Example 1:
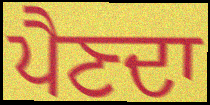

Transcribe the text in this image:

ਪੈਣਦਾ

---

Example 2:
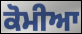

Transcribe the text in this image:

ਕੋਮੀਆ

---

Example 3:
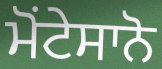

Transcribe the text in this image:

ਮੋਂਟੇਸਾਨੋ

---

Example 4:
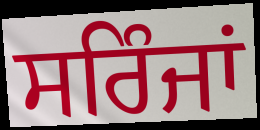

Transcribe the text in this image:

ਸਰਿੰਜਾਂ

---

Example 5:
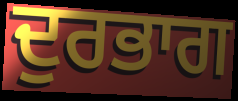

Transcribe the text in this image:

ਦੁਰਭਾਗ